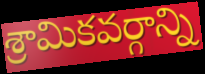
శ్రామికవర్గాన్ని